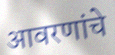
आवरणांचे